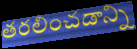
తరలించడాన్ని